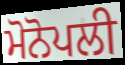
ਮੋਨੋਪਲੀ